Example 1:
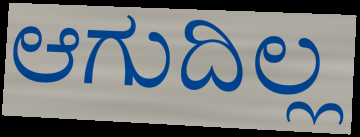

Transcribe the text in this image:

ಆಗುದಿಲ್ಲ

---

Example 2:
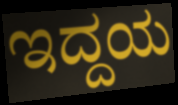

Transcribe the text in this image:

ಇದ್ದಯ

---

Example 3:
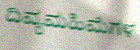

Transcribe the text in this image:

ದಿವ್ಯಮಹಿಮೆಗಳ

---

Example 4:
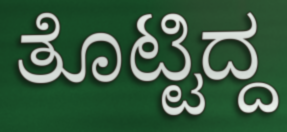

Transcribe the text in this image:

ತೊಟ್ಟಿದ್ದ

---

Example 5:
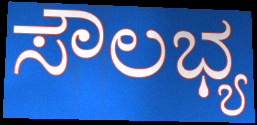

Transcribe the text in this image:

ಸೌಲಭ್ಯ